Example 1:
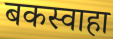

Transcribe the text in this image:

बकस्वाहा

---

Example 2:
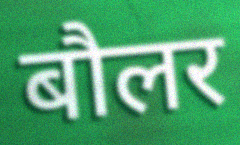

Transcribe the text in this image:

बौलर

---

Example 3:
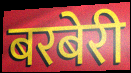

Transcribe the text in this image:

बरबेरी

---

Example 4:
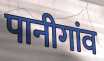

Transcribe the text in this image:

पानीगांव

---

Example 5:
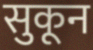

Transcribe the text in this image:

सुकून